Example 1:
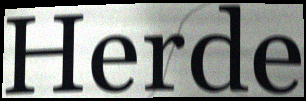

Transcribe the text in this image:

Herde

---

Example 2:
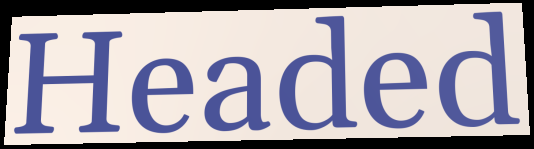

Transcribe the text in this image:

Headed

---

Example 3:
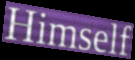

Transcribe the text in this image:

Himself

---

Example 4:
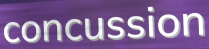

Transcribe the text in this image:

concussion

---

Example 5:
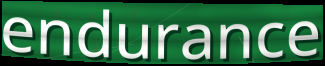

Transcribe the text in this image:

endurance